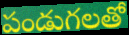
పండుగలతో